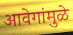
आवेगांमुळे